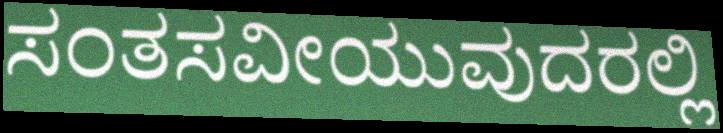
ಸಂತಸವೀಯುವುದರಲ್ಲಿ